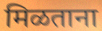
मिळताना